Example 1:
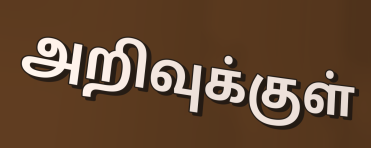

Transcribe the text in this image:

அறிவுக்குள்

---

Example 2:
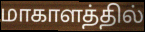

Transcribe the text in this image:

மாகாளத்தில்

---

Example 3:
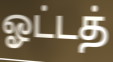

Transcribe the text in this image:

ஓட்டத்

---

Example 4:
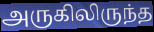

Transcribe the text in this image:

அருகிலிருந்த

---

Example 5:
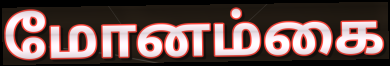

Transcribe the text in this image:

மோனம்கை